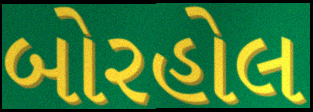
બોરહોલ